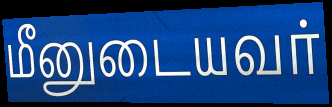
மீனுடையவர்